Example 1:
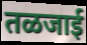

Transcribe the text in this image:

तळजाई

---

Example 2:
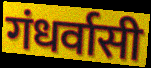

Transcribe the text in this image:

गंधर्वासी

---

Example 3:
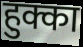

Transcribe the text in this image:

हुक्का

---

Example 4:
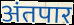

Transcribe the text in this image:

अंतपार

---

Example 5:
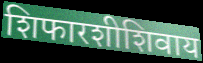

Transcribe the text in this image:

शिफारशीशिवाय